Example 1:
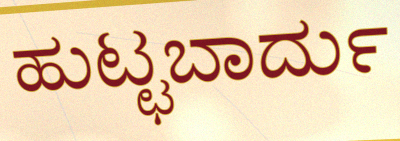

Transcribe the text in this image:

ಹುಟ್ಟಬಾರ್ದು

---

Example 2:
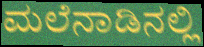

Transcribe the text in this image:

ಮಲೆನಾಡಿನಲ್ಲಿ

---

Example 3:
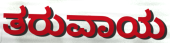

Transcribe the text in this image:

ತರುವಾಯ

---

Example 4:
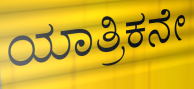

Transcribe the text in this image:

ಯಾತ್ರಿಕನೇ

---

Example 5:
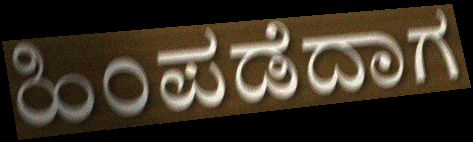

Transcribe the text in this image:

ಹಿಂಪಡೆದಾಗ